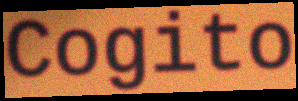
Cogito